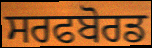
ਸਰਫਬੋਰਡ